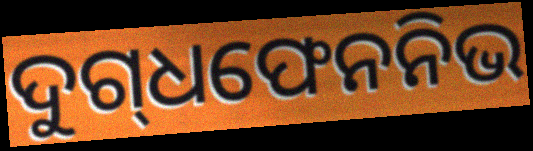
ଦୁଗ୍‍ଧଫେନନିଭ